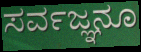
ಸರ್ವಜ್ಞನೂ